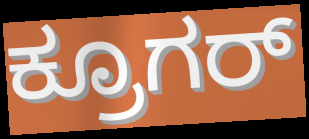
ಕ್ರೂಗರ್